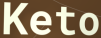
Keto